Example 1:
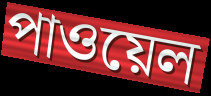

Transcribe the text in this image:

পাওয়েল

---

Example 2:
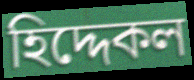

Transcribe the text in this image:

হিদ্দেকল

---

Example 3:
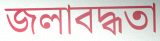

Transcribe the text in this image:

জলাবদ্ধতা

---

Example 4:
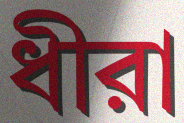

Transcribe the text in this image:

ধীরা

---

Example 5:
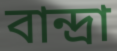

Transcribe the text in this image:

বান্দ্রা